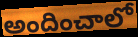
అందించాలో